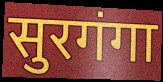
सुरगंगा